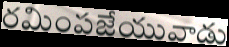
రమింపజేయువాడు